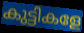
കുട്ടികളേ